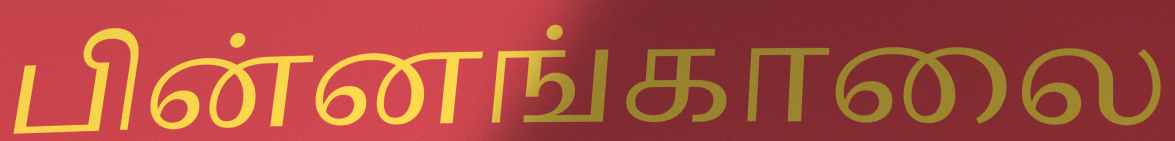
பின்னங்காலை